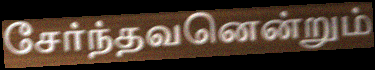
சேர்ந்தவனென்றும்